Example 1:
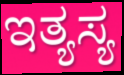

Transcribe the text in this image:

ಇತ್ಯಸ್ಯ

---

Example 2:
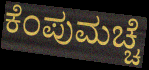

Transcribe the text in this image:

ಕೆಂಪುಮಚ್ಚೆ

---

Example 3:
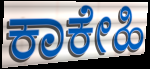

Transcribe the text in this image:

ಕಾಕೇಹಿ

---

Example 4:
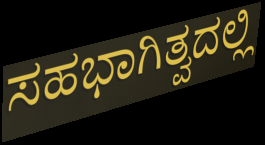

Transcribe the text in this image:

ಸಹಭಾಗಿತ್ವದಲ್ಲಿ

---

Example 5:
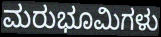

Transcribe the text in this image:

ಮರುಭೂಮಿಗಳು